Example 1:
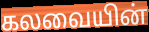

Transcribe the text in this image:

கலவையின்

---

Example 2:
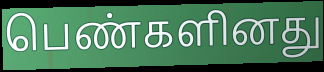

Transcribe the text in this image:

பெண்களினது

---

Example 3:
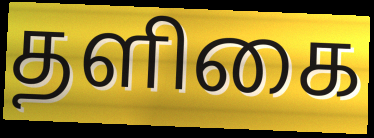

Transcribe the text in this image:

தளிகை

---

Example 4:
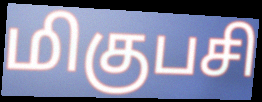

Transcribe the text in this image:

மிகுபசி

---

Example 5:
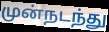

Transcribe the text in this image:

முன்நடந்து